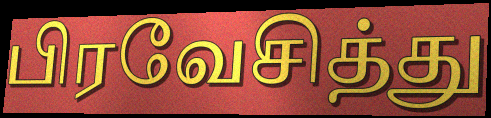
பிரவேசித்து